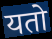
यतो